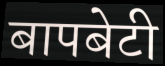
बापबेटी